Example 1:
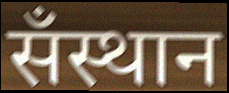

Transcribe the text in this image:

सँस्थान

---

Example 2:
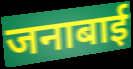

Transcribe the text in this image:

जनाबाई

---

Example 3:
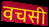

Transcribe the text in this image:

वचसी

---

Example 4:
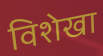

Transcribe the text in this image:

विशेखा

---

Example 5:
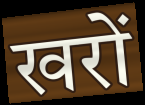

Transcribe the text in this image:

खरों